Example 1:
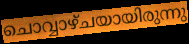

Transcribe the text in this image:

ചൊവ്വാഴ്ചയായിരുന്നു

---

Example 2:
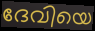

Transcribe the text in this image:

ദേവിയെ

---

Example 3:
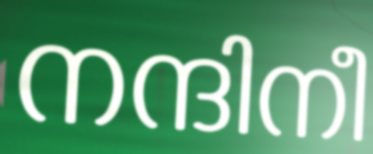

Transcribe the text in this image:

നന്ദിനീ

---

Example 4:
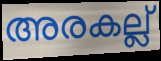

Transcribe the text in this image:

അരകല്ല്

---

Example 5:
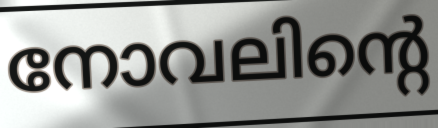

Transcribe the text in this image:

നോവലിന്റെ